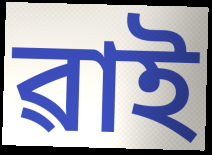
ৱাই